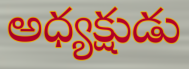
అధ్యక్షుడు